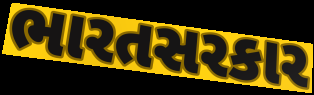
ભારતસરકાર